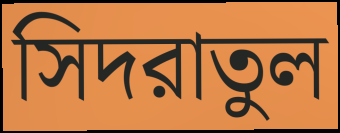
সিদরাতুল